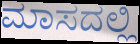
ಮಾಸದಲ್ಲಿ